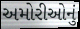
અમોરીઓનું